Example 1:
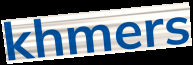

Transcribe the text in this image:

khmers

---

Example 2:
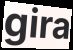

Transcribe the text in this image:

gira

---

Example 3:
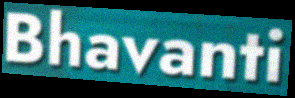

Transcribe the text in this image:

Bhavanti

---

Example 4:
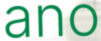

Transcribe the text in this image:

ano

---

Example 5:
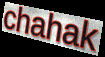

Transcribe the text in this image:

chahak